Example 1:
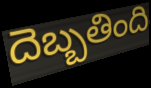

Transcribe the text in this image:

దెబ్బతింది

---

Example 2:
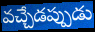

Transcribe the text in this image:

వచ్చేడప్పుడు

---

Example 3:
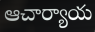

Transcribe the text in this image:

ఆచార్యాయ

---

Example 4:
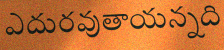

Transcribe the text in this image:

ఎదురవుతాయన్నది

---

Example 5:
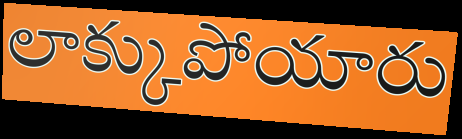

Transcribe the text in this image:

లాక్కుపోయారు